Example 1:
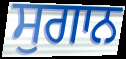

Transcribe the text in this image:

ਸੁਗਾਨ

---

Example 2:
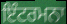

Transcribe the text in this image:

ਇੰਟਰਮਨਾ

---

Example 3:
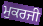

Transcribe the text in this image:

ਮੁਕਰਜੀ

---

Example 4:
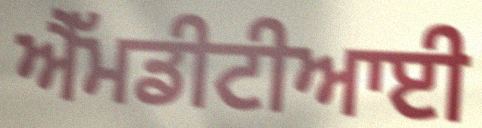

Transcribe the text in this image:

ਐੱਮਡੀਟੀਆਈ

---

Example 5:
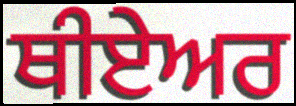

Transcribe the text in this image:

ਥੀਏਅਰ